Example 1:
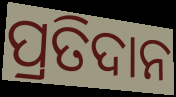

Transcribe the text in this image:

ପ୍ରତିଦାନ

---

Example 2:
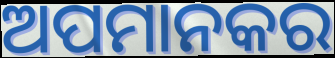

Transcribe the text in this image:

ଅପମାନକର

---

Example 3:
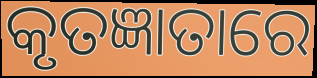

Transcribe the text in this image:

କୃତଜ୍ଞାତାରେ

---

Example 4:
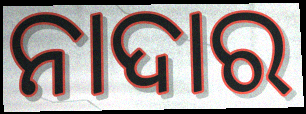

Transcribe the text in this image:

ନାଦାର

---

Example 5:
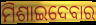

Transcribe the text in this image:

ମିଶାଇଦେବାର